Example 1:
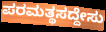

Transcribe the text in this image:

ಪರಮತ್ಥಸದ್ದೇಸು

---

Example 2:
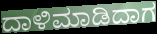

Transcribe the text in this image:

ದಾಳಿಮಾಡಿದಾಗ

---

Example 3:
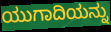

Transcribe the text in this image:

ಯುಗಾದಿಯನ್ನು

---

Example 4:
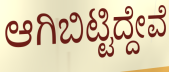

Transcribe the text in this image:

ಆಗಿಬಿಟ್ಟಿದ್ದೇವೆ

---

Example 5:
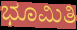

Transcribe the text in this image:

ಭೂಮಿತಿ